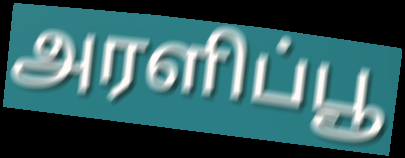
அரளிப்பூ